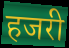
हजरी